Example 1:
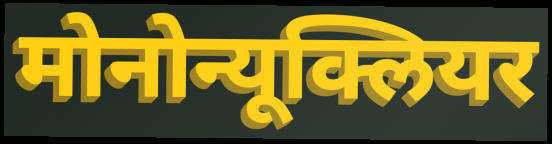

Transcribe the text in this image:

मोनोन्यूक्लियर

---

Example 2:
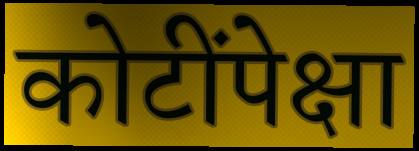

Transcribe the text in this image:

कोटींपेक्षा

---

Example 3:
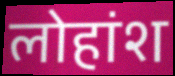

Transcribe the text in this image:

लोहांश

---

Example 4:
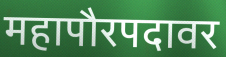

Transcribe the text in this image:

महापौरपदावर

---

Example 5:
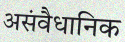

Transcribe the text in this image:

असंवैधानिक